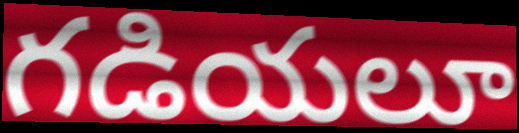
గడియలూ